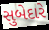
સુબેદારે